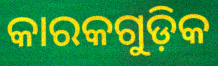
କାରକଗୁଡ଼ିକ